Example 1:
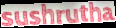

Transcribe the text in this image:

sushrutha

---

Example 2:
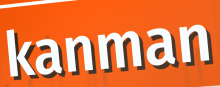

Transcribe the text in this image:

kanman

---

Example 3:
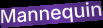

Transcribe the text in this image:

Mannequin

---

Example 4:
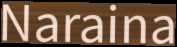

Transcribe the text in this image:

Naraina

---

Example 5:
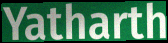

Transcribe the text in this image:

Yatharth